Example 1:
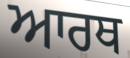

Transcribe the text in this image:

ਆਰਥ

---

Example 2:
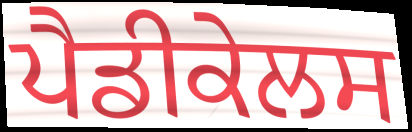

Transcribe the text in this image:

ਪੈਡੀਕੇਲਸ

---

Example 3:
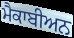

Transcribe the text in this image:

ਮੈਕਾਬੀਅਨ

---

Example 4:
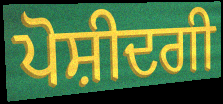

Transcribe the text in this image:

ਪੋਸ਼ੀਦਗੀ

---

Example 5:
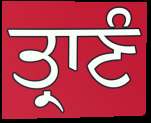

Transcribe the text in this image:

ਤ੍ਰਾਣੰ